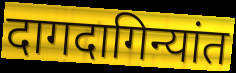
दागदागिन्यांत